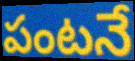
పంటనే